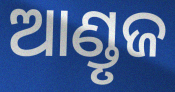
ଆଣ୍ଡୃଜ